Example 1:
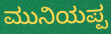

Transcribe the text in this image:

ಮುನಿಯಪ್ಪ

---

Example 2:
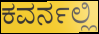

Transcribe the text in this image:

ಕವರ್ನಲ್ಲಿ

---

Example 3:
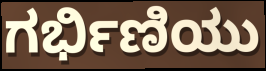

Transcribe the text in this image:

ಗರ್ಭಿಣಿಯು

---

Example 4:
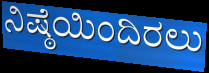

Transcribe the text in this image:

ನಿಷ್ಠೆಯಿಂದಿರಲು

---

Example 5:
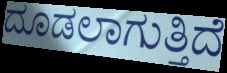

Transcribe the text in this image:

ದೂಡಲಾಗುತ್ತಿದೆ